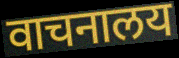
वाचनालय